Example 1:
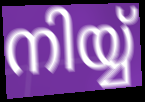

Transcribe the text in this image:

നിയ്യ്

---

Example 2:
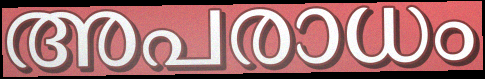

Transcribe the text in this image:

അപരാധം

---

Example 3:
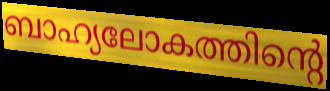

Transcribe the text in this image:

ബാഹ്യലോകത്തിന്റെ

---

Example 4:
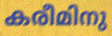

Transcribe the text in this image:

കരീമിനു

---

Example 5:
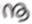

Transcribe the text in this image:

നൂ